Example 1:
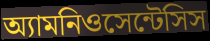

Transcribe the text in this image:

অ্যামনিওসেন্টেসিস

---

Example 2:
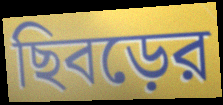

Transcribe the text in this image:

ছিবড়ের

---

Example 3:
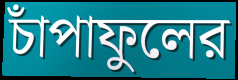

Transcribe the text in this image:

চাঁপাফুলের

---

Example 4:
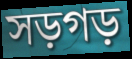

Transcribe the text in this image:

সড়গড়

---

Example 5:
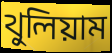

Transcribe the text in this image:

থুলিয়াম